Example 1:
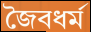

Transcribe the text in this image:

জৈবধর্ম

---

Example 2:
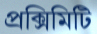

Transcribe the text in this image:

প্রক্সিমিটি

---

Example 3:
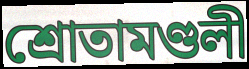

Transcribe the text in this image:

শ্রোতামণ্ডলী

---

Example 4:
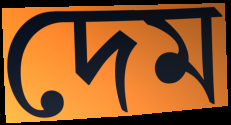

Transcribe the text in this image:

দেম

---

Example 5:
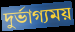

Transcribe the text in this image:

দুর্ভাগ্যময়